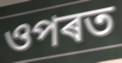
ওপৰত